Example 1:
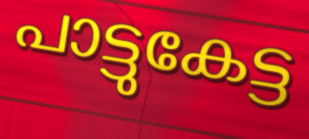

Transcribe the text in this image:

പാട്ടുകേട്ട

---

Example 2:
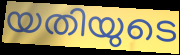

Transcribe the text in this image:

യതിയുടെ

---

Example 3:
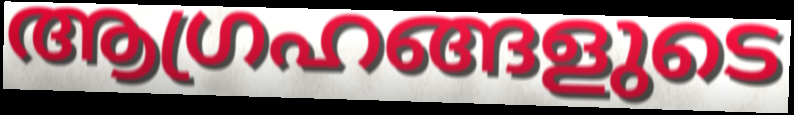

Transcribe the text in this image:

ആഗ്രഹങ്ങളുടെ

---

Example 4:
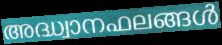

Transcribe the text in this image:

അദ്ധ്വാനഫലങ്ങൾ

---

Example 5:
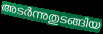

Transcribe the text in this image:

അടർന്നുതുടങ്ങിയ